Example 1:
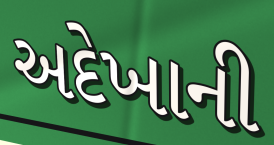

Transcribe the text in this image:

અદેખાની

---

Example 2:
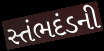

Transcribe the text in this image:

સ્તંભદંડની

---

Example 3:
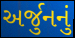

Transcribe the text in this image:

અર્જુનનું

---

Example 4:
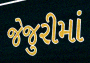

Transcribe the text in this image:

જેજુરીમાં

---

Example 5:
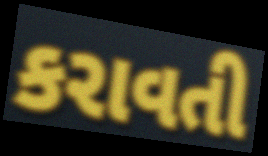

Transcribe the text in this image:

કરાવતી